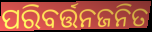
ପରିବର୍ତ୍ତନଜନିତ